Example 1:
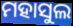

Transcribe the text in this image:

ମହାସୁଲ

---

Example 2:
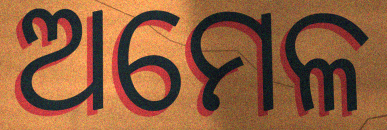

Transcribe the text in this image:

ଅମେଳ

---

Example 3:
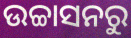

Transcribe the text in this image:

ଉଚ୍ଚାସନରୁ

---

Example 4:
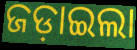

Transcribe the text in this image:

ଜଡ଼ାଇଲା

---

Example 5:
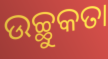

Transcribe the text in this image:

ଉଚ୍ଛୁକତା